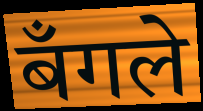
बँगले